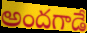
అందగాడే